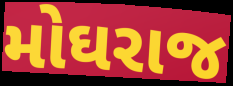
મોઘરાજ